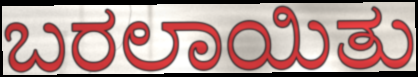
ಬರಲಾಯಿತು